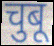
चुबू